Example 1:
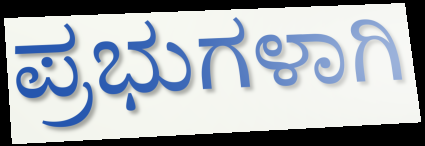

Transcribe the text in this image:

ಪ್ರಭುಗಳಾಗಿ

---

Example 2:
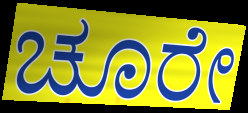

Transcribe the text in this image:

ಚೂರೇ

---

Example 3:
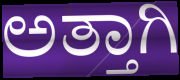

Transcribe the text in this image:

ಅತ್ತಾಗಿ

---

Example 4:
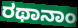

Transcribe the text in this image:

ರಥಾನಾಂ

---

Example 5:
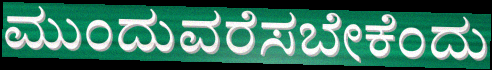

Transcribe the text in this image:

ಮುಂದುವರೆಸಬೇಕೆಂದು